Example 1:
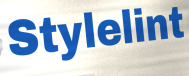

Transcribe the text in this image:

Stylelint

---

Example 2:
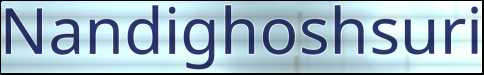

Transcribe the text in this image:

Nandighoshsuri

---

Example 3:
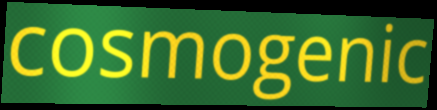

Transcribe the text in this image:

cosmogenic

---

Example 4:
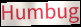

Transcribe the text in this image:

Humbug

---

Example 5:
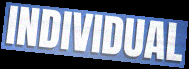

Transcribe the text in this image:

INDIVIDUAL